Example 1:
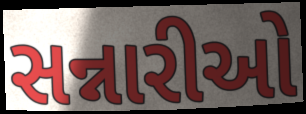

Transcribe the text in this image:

સન્નારીઓ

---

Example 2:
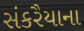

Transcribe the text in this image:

સંકરૈયાના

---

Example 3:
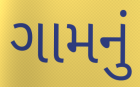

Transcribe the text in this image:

ગામનું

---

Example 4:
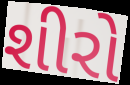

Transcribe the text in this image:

શીરો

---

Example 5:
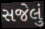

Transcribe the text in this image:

સજેલું